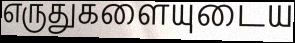
எருதுகளையுடைய